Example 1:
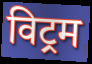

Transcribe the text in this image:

विट्रम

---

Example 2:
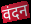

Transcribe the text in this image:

वंदन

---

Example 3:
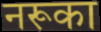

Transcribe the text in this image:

नरूका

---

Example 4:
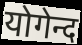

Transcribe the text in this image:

योगेन्द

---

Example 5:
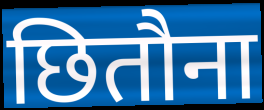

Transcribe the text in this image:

छितौना